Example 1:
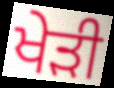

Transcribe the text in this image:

ਖੇੜੀ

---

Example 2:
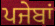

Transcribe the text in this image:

ਪਜੇਬਾਂ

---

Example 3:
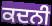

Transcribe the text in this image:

ਕਦਨੀ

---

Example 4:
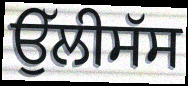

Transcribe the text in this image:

ਉੱਲੀਸੱਸ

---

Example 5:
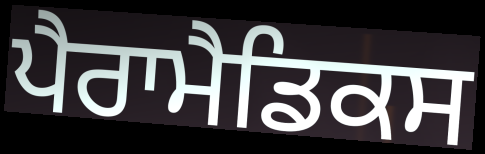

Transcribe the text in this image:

ਪੈਰਾਮੈਡਿਕਸ